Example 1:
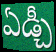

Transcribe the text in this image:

ఏడ్చీ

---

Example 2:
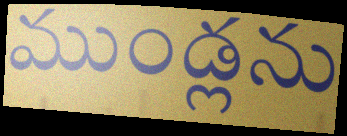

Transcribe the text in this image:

ముండ్లను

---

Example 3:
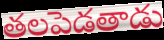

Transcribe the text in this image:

తలపెడతాడు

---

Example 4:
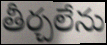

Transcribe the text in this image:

తీర్చలేను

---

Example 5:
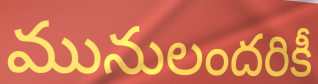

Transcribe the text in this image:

మునులందరికీ